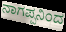
ನಾಗಪ್ಪನಿಂದ